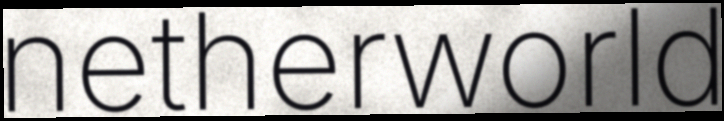
netherworld